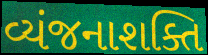
વ્યંજનાશક્તિ